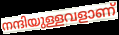
നന്ദിയുള്ളവളാണ്